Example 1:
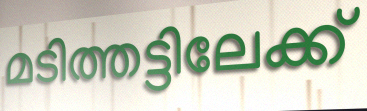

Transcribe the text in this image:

മടിത്തട്ടിലേക്ക്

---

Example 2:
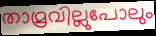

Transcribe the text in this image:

താമ്രവില്ലുപോലും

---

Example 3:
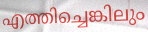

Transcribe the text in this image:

എത്തിച്ചെങ്കിലും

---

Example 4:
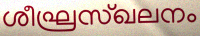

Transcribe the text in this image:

ശീഘ്രസ്ഖലനം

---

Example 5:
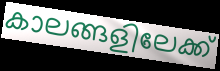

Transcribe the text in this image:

കാലങ്ങളിലേക്ക്